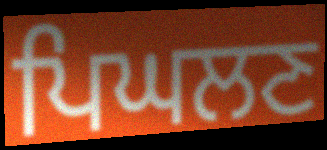
ਪਿਘਲਣ